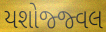
યશોજ્જ્વલ